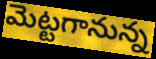
మెట్టగానున్న